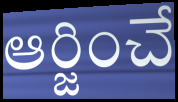
ఆర్జించే